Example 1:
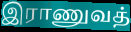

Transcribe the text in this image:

இராணுவத்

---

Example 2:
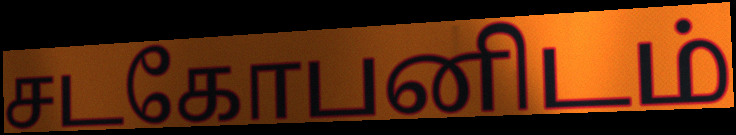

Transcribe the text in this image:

சடகோபனிடம்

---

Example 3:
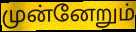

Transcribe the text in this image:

முன்னேறும்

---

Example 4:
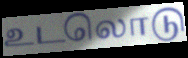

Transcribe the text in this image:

உடலொடு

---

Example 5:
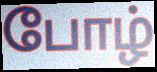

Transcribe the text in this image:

போழ்